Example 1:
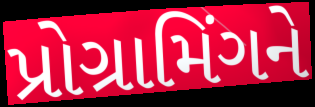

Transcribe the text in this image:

પ્રોગ્રામિંગને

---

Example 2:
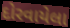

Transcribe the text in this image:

દોરવાયેલા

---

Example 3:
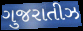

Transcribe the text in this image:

ગુજરાતીઝ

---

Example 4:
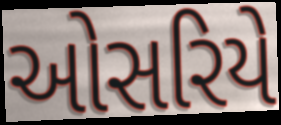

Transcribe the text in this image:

ઓસરિયે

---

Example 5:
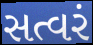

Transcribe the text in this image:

સત્વરં